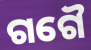
ଗଗୈ